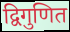
द्विगुणित